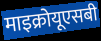
माइक्रोयूएसबी